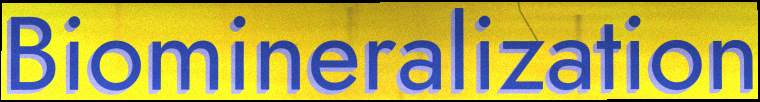
Biomineralization